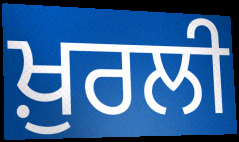
ਖ਼ੁਰਲੀ